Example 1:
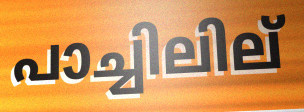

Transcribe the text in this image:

പാച്ചിലില്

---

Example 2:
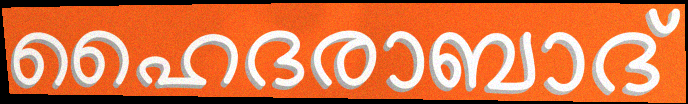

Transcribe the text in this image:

ഹൈദരാബാദ്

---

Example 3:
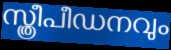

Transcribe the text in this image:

സ്ത്രീപീഡനവും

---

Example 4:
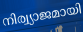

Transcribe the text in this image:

നിര്വ്യാജമായി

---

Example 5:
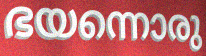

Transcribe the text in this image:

ഭയന്നൊരു